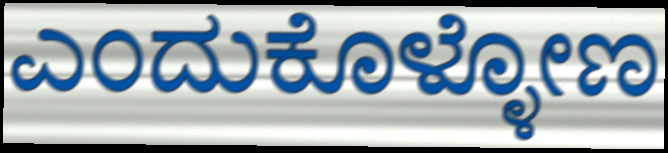
ಎಂದುಕೊಳ್ಳೋಣ